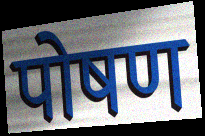
पोषण